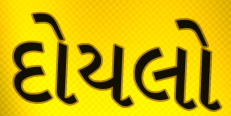
દોયલો